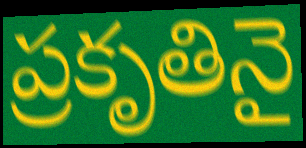
ప్రకృతినై